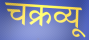
चक्रव्यू